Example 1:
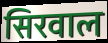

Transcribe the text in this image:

सिरवाल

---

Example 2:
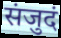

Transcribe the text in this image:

संजुदं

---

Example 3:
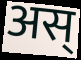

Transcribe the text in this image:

अस्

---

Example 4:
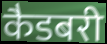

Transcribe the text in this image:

कैडबरी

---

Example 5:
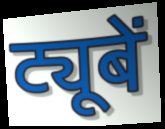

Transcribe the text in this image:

ट्यूबें